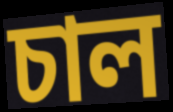
চাল